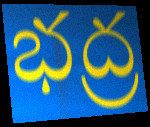
భద్ర